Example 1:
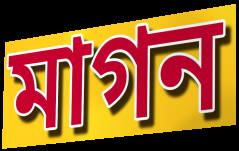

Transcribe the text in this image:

মাগন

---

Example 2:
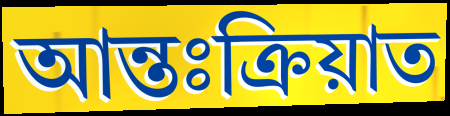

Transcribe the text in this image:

আন্তঃক্ৰিয়াত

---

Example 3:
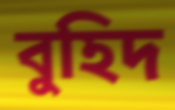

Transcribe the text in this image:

বুহিদ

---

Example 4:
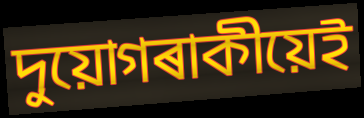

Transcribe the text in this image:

দুয়োগৰাকীয়েই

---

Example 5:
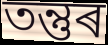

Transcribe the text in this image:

তন্তুৰ